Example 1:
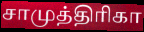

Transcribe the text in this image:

சாமுத்திரிகா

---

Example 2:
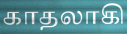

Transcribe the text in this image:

காதலாகி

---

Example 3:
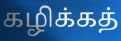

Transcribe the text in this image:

கழிக்கத்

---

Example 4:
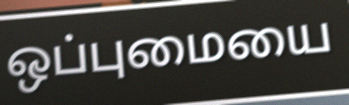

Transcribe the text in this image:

ஒப்புமையை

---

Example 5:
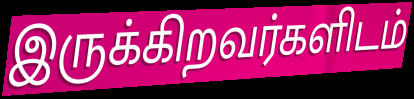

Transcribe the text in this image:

இருக்கிறவர்களிடம்